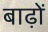
बाढ़ों